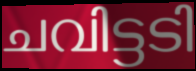
ചവിട്ടടി